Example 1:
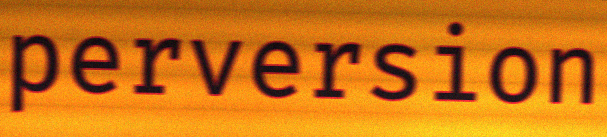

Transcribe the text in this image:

perversion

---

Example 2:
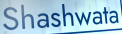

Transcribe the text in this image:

Shashwata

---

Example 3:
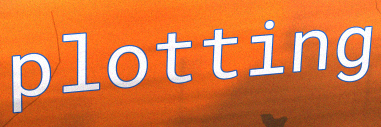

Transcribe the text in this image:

plotting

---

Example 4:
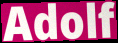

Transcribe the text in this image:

Adolf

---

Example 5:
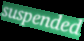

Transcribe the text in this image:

suspended